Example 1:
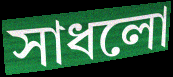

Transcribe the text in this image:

সাধলো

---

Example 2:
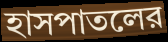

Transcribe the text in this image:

হাসপাতলের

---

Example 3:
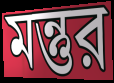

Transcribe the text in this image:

মন্তুর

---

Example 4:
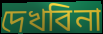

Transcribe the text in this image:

দেখবিনা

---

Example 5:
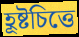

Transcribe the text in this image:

হূষ্টচিত্তে